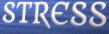
STRESS